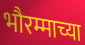
भौरम्माच्या